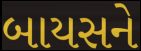
બાયસને